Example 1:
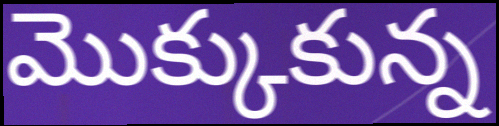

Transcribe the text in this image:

మొక్కుకున్న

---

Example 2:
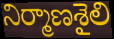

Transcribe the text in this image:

నిర్మాణశైలి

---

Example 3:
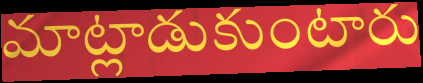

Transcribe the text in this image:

మాట్లాడుకుంటారు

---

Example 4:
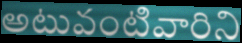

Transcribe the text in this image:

అటువంటివారిని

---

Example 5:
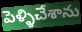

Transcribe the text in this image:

పెళ్ళిచేశాను